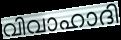
വിവാഹാദി